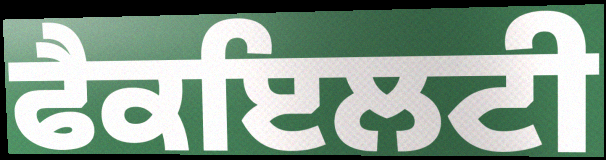
ਫੈਕਇਲਟੀ